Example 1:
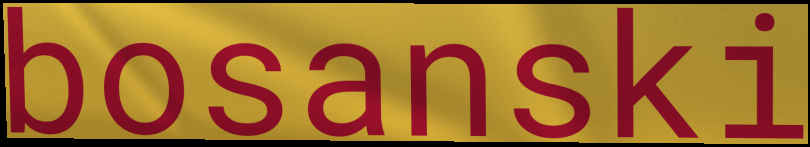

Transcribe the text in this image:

bosanski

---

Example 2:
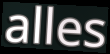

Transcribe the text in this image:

alles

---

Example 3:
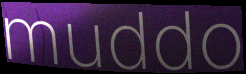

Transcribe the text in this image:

muddo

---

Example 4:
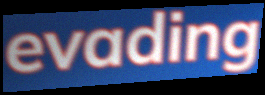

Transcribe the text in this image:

evading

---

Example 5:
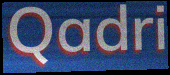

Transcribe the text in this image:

Qadri